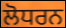
ਲੋਧਰਨ